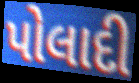
પોલાદી